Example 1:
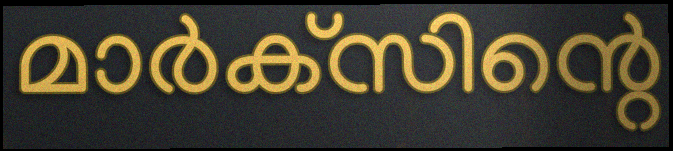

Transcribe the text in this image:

മാർക്‌സിന്റെ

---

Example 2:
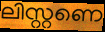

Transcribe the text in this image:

ലിസ്റ്റണെ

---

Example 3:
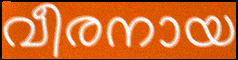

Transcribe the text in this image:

വീരനായ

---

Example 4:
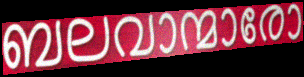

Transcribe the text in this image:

ബലവാന്മാരോ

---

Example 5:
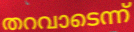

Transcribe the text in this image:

തറവാടെന്ന്